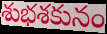
శుభశకునం